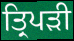
ਤ੍ਰਿਪਡ਼ੀ